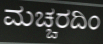
ಮಚ್ಚರದಿಂ